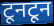
टूनटून